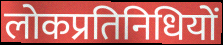
लोकप्रतिनिधियों